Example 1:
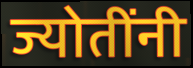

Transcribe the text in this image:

ज्योतींनी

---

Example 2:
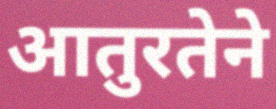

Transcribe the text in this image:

आतुरतेने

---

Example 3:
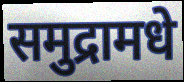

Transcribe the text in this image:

समुद्रामधे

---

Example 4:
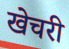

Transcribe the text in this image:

खेचरी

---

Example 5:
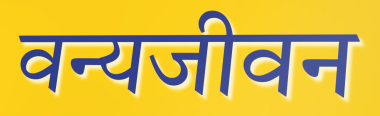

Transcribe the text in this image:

वन्यजीवन